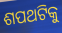
ଶପଥଟିକୁ